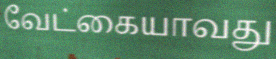
வேட்கையாவது